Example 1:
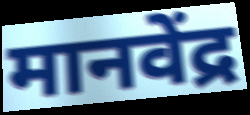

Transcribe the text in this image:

मानवेंद्र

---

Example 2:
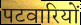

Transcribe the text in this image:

पटवारियों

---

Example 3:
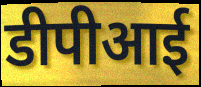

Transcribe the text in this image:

डीपीआई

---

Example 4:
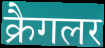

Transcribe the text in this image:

क्रैगलर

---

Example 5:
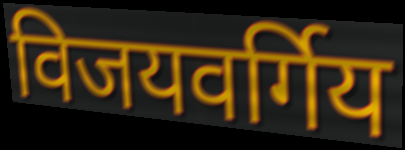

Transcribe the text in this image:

विजयवर्गिय